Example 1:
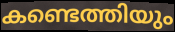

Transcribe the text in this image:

കണ്ടെത്തിയും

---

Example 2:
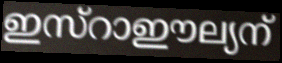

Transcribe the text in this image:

ഇസ്റാഈല്യന്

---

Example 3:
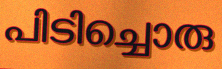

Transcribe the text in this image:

പിടിച്ചൊരു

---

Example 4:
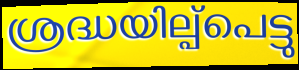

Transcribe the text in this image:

ശ്രദ്ധയില്പ്പെട്ടു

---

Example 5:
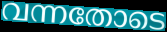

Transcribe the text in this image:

വന്നതോടെ